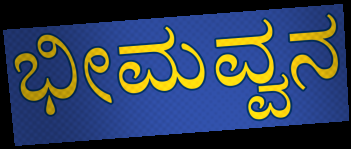
ಭೀಮವ್ವನ